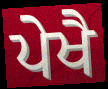
ਪੇਖੈ